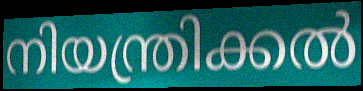
നിയന്ത്രിക്കൽ